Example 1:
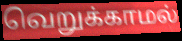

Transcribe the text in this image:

வெறுக்காமல்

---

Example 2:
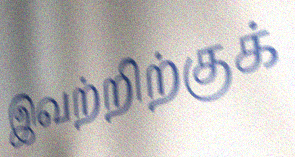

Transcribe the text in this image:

இவற்றிற்குக்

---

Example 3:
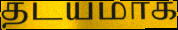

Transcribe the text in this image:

தடயமாக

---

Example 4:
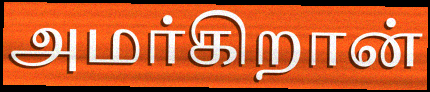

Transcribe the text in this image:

அமர்கிறான்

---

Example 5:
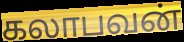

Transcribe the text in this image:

கலாபவன்